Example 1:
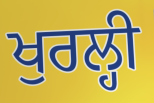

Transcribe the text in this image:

ਖੁਰਲ੍ਹੀ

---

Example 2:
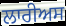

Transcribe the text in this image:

ਲਾਰੀਅਸ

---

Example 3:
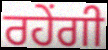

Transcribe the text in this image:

ਰਹੇਂਗੀ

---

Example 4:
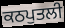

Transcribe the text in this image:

ਕਠਪੁਤਲੀ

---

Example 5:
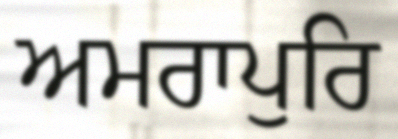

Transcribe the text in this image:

ਅਮਰਾਪੁਰਿ